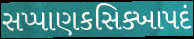
સપ્પાણકસિક્ખાપદં